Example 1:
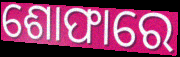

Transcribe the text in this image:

ଶୋଫାରେ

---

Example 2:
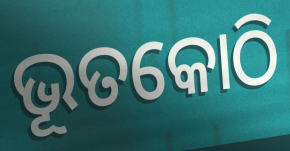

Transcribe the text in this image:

ଭୂତକୋଠି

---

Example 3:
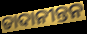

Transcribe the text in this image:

ତାଦାନୀନ୍ତନ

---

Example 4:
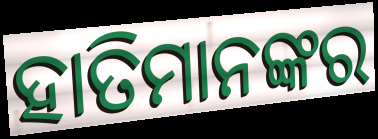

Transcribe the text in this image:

ହାତିମାନଙ୍କର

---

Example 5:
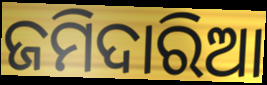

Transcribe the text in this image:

ଜମିଦାରିଆ